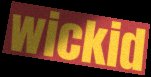
wickid